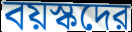
বয়স্কদের